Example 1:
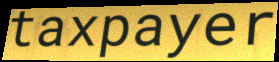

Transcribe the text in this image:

taxpayer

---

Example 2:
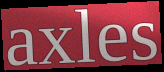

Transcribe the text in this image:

axles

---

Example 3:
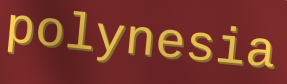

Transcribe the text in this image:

polynesia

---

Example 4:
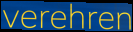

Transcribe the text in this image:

verehren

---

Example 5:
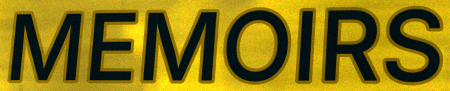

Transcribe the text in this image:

MEMOIRS